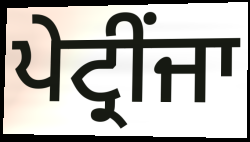
ਪੇਟ੍ਰੀਂਜਾ